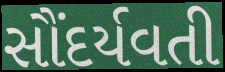
સૌંદર્યવતી